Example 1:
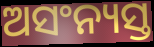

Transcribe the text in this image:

ଅସଂନ୍ୟସ୍ତ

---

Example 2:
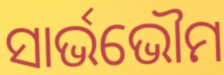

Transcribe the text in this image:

ସାର୍ଭଭୌମ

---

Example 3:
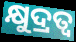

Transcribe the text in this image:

କ୍ଷୁଦ୍ରତ୍ୱ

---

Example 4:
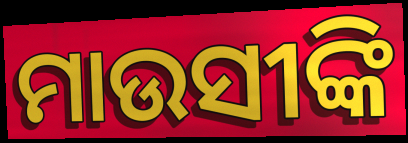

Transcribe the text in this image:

ମାଉସୀଙ୍କି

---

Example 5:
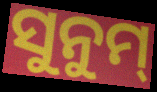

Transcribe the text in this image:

ସୁନୁମ୍